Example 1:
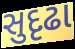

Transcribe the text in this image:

સુદૃઢા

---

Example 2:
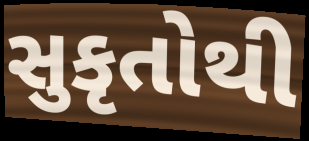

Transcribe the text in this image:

સુકૃતોથી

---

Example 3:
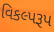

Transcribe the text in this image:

વિકલ્પરૂપ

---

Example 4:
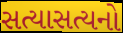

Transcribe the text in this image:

સત્યાસત્યનો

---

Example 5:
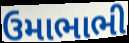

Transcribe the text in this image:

ઉમાભાભી